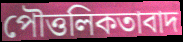
পৌত্তলিকতাবাদ